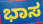
ಭಾಸ